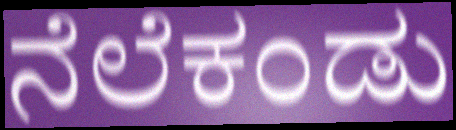
ನೆಲೆಕಂಡು